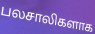
பலசாலிகளாக